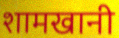
शामखानी